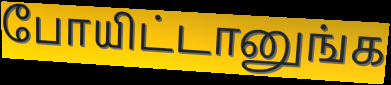
போயிட்டானுங்க